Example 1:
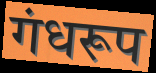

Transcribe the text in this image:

गंधरूप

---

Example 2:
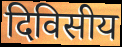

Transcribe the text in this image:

दिविसीय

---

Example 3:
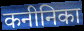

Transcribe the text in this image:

कनीनिका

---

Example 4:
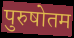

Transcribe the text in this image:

पुरुषोतम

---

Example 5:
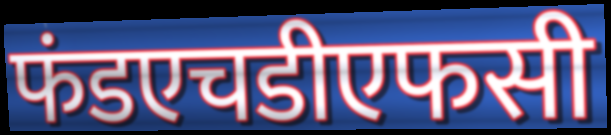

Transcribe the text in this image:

फंडएचडीएफसी